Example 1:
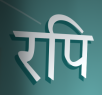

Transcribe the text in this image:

रपि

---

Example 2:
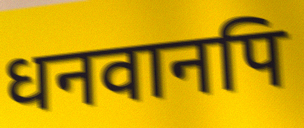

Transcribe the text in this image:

धनवानपि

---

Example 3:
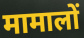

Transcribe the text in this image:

मामालों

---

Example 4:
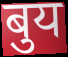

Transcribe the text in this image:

बुय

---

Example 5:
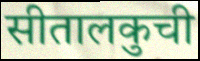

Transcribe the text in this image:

सीतालकुची